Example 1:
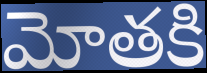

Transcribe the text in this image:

మోతకి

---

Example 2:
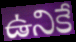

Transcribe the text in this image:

ఉనికే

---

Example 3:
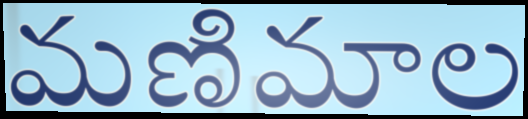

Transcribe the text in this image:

మణిమాల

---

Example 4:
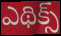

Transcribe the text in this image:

ఎథిక్స్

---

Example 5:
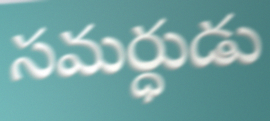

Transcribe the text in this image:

సమర్ధుడు